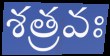
శత్రవః